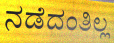
ನಡೆದಂತಿಲ್ಲ